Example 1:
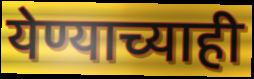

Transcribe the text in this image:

येण्याच्याही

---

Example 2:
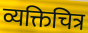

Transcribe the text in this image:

व्यक्तिचित्र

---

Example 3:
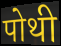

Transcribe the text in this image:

पोथी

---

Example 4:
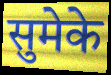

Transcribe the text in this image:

सुमेके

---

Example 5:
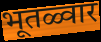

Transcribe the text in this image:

भूतळ्वार